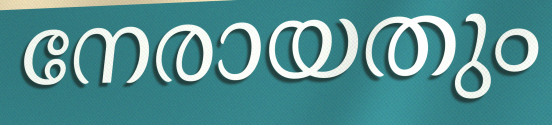
നേരായതും